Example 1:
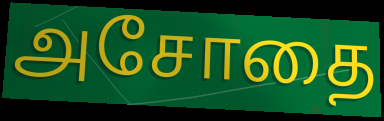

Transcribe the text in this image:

அசோதை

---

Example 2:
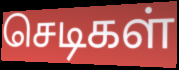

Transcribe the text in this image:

செடிகள்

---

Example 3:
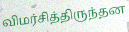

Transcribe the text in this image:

விமர்சித்திருந்தன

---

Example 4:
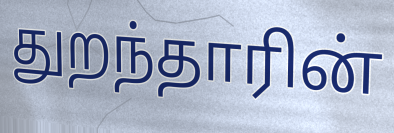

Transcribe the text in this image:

துறந்தாரின்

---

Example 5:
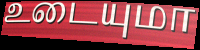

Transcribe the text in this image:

உடையுமா